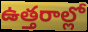
ఉత్తరాల్లో